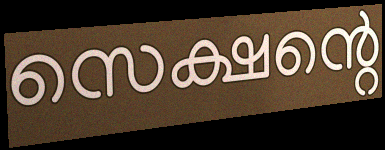
സെക്ഷന്റെ